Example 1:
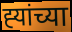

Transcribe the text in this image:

ह्‍यांच्या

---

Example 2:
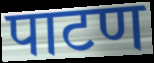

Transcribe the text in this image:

पाटण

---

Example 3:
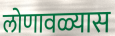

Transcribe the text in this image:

लोणावळ्यास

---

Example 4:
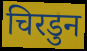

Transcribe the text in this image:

चिरडुन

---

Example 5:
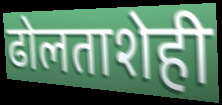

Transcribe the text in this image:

ढोलताशेही